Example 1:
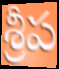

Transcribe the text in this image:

శ్రీప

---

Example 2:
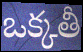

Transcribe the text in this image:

ఒక్కతీ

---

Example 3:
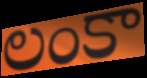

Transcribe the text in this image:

లంకా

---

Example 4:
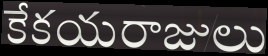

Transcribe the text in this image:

కేకయరాజులు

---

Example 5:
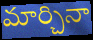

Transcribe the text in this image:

మార్చినా